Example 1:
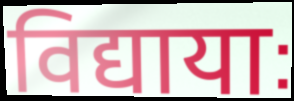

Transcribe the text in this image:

विद्यायाः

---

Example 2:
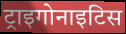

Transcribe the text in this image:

ट्राइगोनाइटिस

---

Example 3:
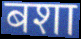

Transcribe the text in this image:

बशा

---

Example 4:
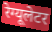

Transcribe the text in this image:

रेग्यूलेटर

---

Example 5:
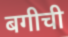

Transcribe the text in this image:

बगीची